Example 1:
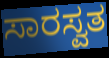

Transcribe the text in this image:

ಸಾರಸ್ವತ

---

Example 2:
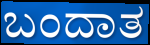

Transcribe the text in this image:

ಬಂದಾತ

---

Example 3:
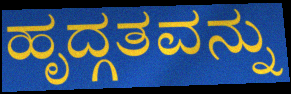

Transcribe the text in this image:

ಹೃದ್ಗತವನ್ನು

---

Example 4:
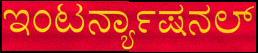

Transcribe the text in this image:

ಇಂಟರ್ನ್ಯಾಷನಲ್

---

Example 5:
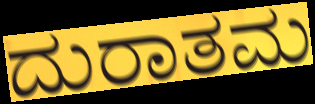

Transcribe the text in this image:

ದುರಾತಮ